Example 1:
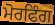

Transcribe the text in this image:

ਮੋਰਫਿੰਗ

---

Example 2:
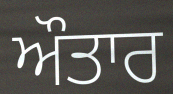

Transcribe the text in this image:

ਔਤਾਰ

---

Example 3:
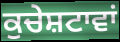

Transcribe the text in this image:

ਕੁਚੇਸ਼ਟਾਵਾਂ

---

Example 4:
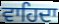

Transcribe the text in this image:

ਵਾਹਿਦਾ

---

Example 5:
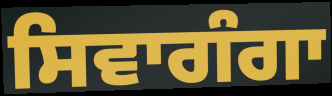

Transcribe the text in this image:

ਸਿਵਾਗੰਗਾ